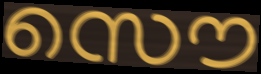
സൌ